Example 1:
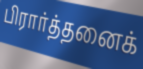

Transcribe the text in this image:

பிரார்த்தனைக்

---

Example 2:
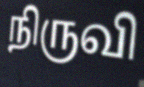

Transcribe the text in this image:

நிருவி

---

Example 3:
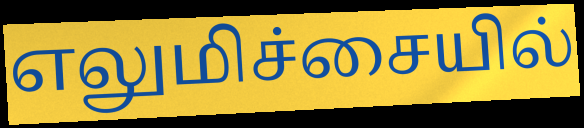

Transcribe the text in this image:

எலுமிச்சையில்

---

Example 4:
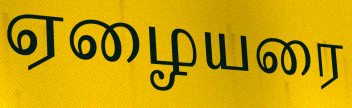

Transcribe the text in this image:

ஏழையரை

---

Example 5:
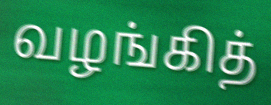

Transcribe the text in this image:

வழங்கித்